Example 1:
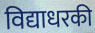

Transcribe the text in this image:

विद्याधरकी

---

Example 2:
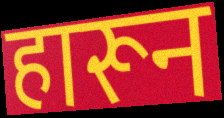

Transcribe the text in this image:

हारून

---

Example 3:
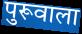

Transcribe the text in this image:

पुरूवाला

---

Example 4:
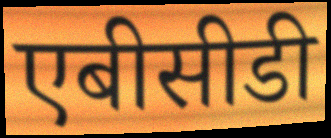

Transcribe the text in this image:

एबीसीडी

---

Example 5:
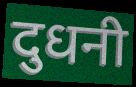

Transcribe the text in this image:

दुधनी